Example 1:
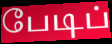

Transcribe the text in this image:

பேடிப்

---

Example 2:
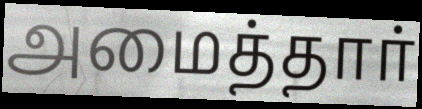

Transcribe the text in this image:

அமைத்தார்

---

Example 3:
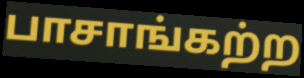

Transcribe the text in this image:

பாசாங்கற்ற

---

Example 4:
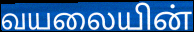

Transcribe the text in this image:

வயலையின்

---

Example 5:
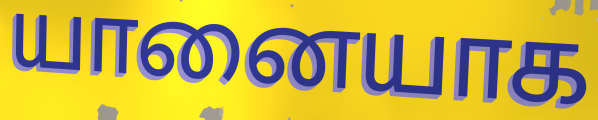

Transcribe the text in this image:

யானையாக